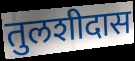
तुलशीदास